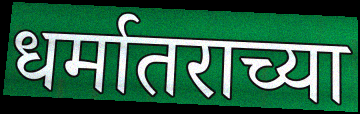
धर्मातराच्या